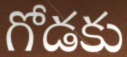
గోడకు